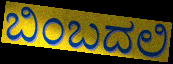
ಬಿಂಬದಲಿ